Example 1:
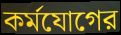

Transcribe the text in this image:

কর্মযোগের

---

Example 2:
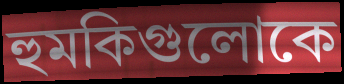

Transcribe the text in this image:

হুমকিগুলোকে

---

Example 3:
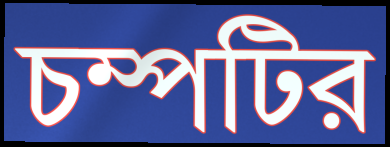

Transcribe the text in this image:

চম্পটির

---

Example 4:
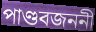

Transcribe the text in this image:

পাণ্ডবজননী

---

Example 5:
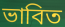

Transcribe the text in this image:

ভাবিত